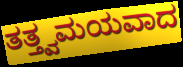
ತತ್ತ್ವಮಯವಾದ